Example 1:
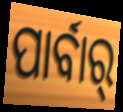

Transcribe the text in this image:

ପାର୍ବାର୍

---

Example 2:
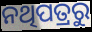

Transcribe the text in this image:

ନଥିପତ୍ରରୁ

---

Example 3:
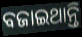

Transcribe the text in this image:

ବଜାଇଥାନ୍ତି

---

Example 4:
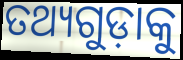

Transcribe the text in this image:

ତଥ୍ୟଗୁଡ଼ାକୁ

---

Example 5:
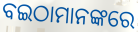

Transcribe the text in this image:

ବଇଠାମାନଙ୍କରେ